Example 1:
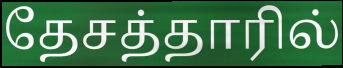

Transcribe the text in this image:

தேசத்தாரில்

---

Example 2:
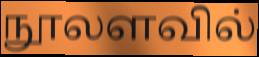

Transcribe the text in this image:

நூலளவில்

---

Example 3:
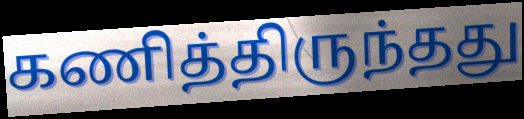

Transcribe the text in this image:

கணித்திருந்தது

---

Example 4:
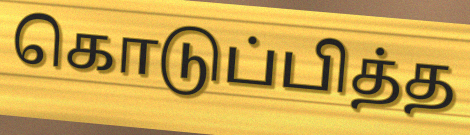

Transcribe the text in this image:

கொடுப்பித்த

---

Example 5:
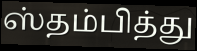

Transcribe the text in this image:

ஸ்தம்பித்து